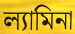
ল্যামিনা